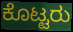
ಕೊಟ್ಟರು